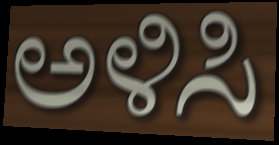
ಅಳಿಸಿ